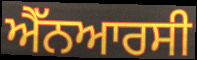
ਐੱਨਆਰਸੀ